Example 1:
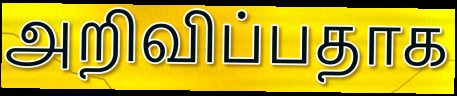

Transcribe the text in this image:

அறிவிப்பதாக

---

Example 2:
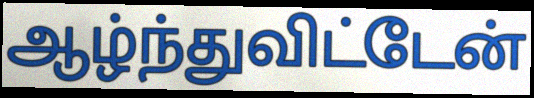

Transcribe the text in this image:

ஆழ்ந்துவிட்டேன்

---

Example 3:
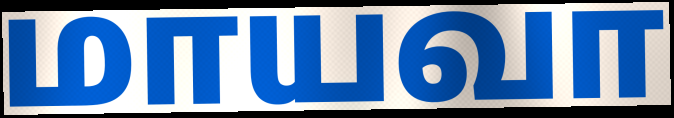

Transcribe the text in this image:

மாயவா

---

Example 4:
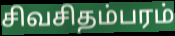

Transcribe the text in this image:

சிவசிதம்பரம்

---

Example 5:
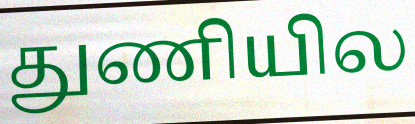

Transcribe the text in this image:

துணியில